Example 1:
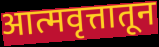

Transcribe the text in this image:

आत्मवृत्तातून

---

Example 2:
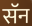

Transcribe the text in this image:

सॅन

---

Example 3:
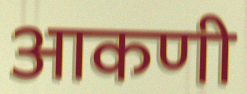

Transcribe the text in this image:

आकणी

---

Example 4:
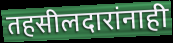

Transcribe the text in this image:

तहसीलदारांनाही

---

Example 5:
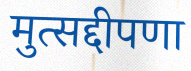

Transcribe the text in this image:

मुत्सद्दीपणा